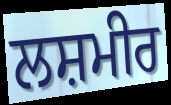
ਲਸ਼ਮੀਰ